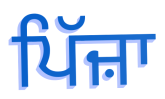
ਪਿੱਜ਼ਾ